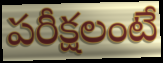
పరీక్షలంటే